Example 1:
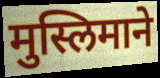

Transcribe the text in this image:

मुस्लिमाने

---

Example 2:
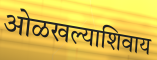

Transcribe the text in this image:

ओळखल्याशिवाय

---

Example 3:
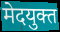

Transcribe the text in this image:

मेदयुक्त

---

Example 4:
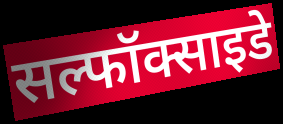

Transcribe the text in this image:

सल्फॉक्साइडे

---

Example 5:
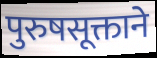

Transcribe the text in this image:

पुरुषसूक्ताने